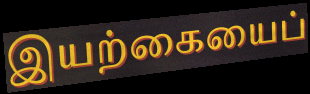
இயற்கையைப்